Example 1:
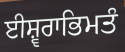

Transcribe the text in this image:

ਈਸ਼੍ਵਰਾਭਿਮਤੰ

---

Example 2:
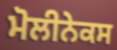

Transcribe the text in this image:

ਮੋਲੀਨੇਕਸ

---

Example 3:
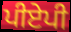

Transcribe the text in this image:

ਪੀਏਪੀ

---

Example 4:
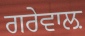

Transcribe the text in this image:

ਗਰੇਵਾਲ਼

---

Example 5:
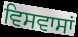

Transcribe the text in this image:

ਵਿਸਵਾਸਾਂ